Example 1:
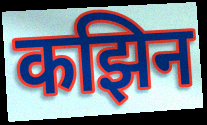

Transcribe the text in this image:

कझिन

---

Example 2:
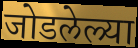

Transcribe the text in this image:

जोडलेल्या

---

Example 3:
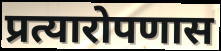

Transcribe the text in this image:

प्रत्यारोपणास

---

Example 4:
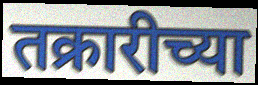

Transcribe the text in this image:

तक्रारीच्या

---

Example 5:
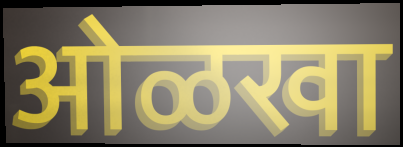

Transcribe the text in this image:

ओळखा